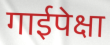
गाईपेक्षा